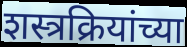
शस्त्रक्रियांच्या